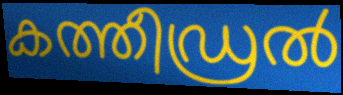
കത്തീഡ്രൽ